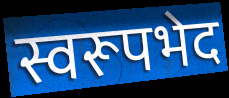
स्वरूपभेद